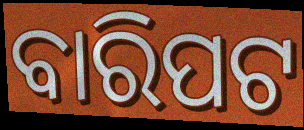
ବାରିପଟ